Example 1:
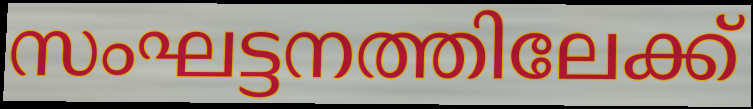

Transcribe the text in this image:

സംഘട്ടനത്തിലേക്ക്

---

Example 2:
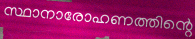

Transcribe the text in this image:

സ്ഥാനാരോഹണത്തിന്റെ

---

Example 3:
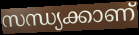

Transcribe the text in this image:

സന്ധ്യക്കാണ്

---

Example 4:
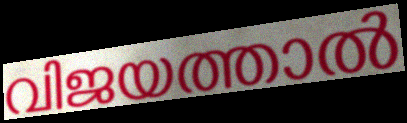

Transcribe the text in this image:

വിജയത്താൽ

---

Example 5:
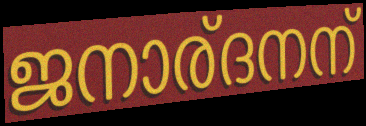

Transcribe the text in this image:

ജനാര്ദനന്